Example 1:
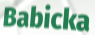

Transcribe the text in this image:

Babicka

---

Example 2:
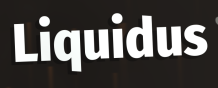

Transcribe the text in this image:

Liquidus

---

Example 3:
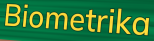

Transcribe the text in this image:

Biometrika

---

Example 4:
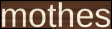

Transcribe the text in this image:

mothes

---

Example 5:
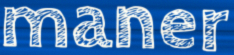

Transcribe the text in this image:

maner